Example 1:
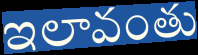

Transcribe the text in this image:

ఇలావంతు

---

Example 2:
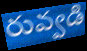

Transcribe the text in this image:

రువ్వడి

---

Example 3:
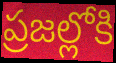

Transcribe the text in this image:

ప్రజల్లోకి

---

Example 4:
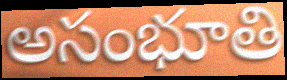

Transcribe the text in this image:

అసంభూతి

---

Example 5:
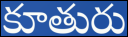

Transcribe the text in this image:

కూతురు